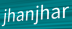
jhanjhar